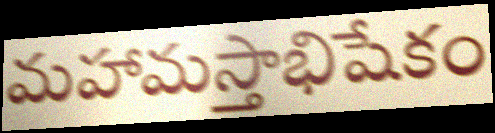
మహామస్తాభిషేకం